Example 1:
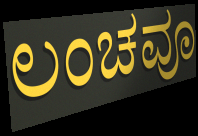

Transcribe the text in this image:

ಲಂಚವೂ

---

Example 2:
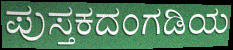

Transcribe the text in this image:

ಪುಸ್ತಕದಂಗಡಿಯ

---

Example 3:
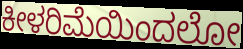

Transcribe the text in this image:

ಕೀಳರಿಮೆಯಿಂದಲೋ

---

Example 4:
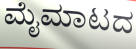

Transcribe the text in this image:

ಮೈಮಾಟದ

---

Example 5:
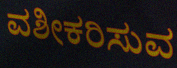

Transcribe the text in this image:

ವಶೀಕರಿಸುವ